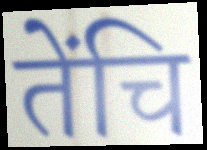
तेंचि